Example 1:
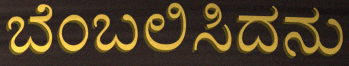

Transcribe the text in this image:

ಬೆಂಬಲಿಸಿದನು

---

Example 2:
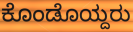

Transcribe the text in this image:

ಕೊಂಡೊಯ್ದರು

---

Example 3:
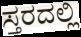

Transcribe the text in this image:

ಸ್ತರದಲ್ಲಿ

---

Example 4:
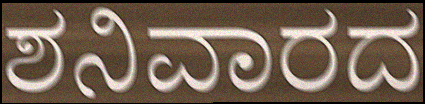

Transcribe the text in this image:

ಶನಿವಾರದ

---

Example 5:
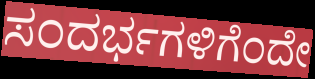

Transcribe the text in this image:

ಸಂದರ್ಭಗಳಿಗೆಂದೇ